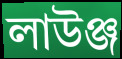
লাউঞ্জ